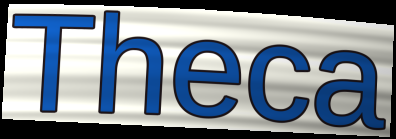
Theca